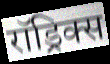
रॉड्रिक्स